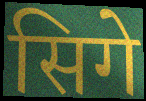
सिगे